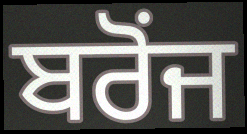
ਬਰੋਂਜ